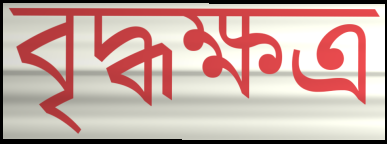
বৃদ্ধক্ষত্র